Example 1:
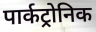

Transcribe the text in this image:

पार्कट्रोनिक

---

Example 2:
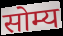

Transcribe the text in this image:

सोम्य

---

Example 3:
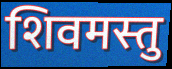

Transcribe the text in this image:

शिवमस्तु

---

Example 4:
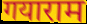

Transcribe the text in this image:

गयाराम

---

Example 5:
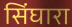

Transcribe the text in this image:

सिंघारा